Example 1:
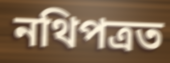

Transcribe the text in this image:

নথিপত্ৰত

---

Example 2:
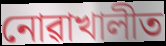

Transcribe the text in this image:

নোৱাখালীত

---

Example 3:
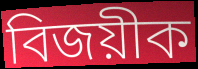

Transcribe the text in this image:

বিজয়ীক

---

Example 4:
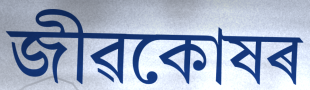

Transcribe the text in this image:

জীৱকোষৰ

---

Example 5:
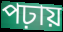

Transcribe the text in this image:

পঢ়ায়